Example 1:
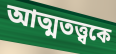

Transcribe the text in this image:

আত্মতত্ত্বকে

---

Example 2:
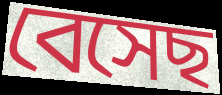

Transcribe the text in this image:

বেসেছ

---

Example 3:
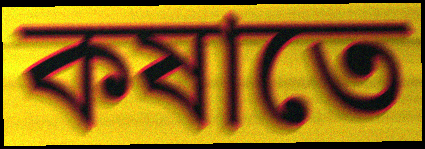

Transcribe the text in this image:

কষাতে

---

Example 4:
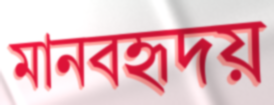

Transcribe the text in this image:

মানবহৃদয়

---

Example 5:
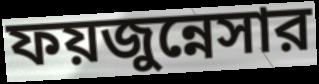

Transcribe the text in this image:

ফয়জুন্নেসার